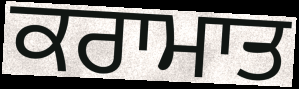
ਕਰਾਮਾਤ